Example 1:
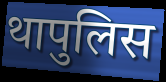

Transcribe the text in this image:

थापुलिस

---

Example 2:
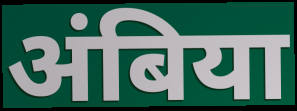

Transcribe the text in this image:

अंबिया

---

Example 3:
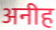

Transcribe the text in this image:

अनीह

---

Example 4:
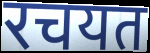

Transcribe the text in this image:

रचयत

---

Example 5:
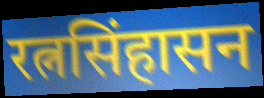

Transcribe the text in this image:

रत्नसिंहासन